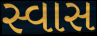
સ્વાસ